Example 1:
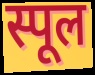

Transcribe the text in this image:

स्पूल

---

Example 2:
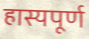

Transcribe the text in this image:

हास्यपूर्ण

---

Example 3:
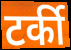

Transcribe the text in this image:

टर्की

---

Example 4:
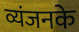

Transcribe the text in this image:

व्यंजनके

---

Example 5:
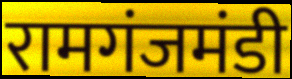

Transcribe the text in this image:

रामगंजमंडी